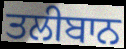
ਤਲੀਬਾਨ